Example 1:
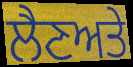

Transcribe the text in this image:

ਲੈਣਅਤੇ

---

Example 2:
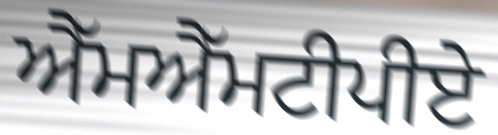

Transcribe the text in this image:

ਐੱਮਐੱਮਟੀਪੀਏ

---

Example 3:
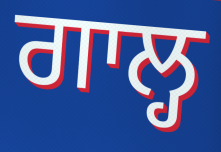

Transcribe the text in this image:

ਗਾਲ੍ਹ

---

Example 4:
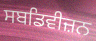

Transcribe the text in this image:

ਸਬਡਿਵੀਜ਼ਨ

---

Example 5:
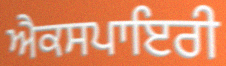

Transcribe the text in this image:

ਐਕਸਪਾਇਰੀ